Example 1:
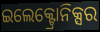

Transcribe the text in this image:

ଇଲେକ୍ଟ୍ରୋନିକ୍ସର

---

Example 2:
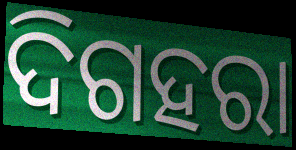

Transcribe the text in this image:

ଦିଗହରା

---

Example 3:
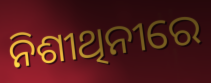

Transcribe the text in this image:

ନିଶୀଥିନୀରେ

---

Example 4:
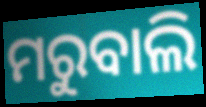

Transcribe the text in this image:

ମରୁବାଲି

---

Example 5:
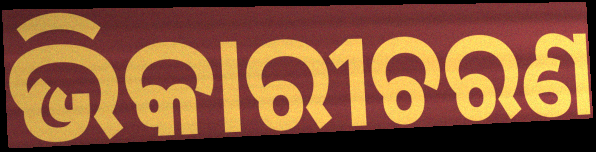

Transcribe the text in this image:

ଭିକାରୀଚରଣ